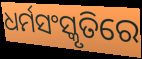
ଧର୍ମସଂସ୍କୃତିରେ